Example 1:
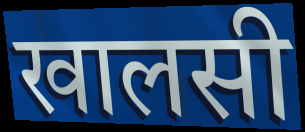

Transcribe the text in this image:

खालसी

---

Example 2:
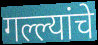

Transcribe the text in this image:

गल्ल्यांचे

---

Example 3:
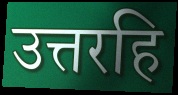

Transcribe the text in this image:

उत्तरहि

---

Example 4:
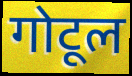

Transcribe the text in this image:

गोटूल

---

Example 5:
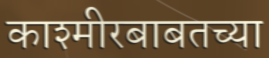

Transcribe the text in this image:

काश्मीरबाबतच्या